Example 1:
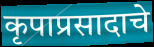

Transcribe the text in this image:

कृपाप्रसादाचे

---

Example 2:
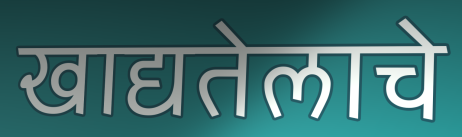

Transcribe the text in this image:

खाद्यतेलाचे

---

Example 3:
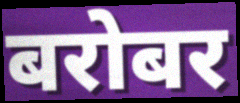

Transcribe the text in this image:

बरोबर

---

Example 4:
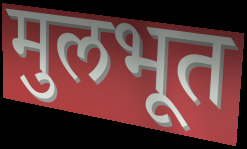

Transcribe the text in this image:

मुलभूत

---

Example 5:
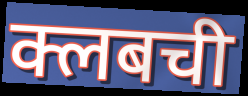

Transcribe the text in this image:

क्लबची